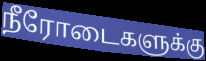
நீரோடைகளுக்கு